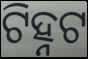
ଟିହ୍ନଟ